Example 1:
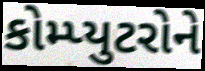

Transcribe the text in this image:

કોમ્પ્યુટરોને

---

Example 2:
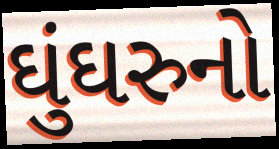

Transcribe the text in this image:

ઘુંઘરુનો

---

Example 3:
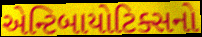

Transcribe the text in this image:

એન્ટિબાયોટિક્સનો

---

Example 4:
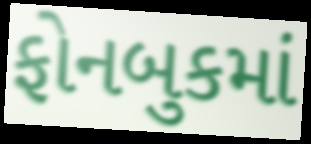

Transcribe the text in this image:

ફોનબુકમાં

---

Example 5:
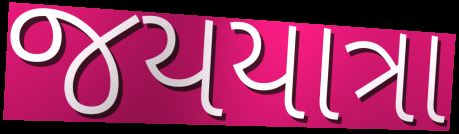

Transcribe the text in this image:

જયયાત્રા